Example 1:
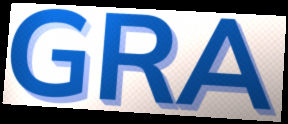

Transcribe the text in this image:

GRA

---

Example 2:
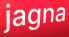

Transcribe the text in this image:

jagna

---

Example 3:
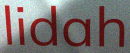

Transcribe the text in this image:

lidah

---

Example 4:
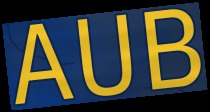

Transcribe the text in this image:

AUB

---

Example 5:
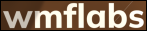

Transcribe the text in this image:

wmflabs